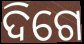
ଦିଗେ